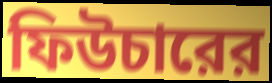
ফিউচারের